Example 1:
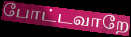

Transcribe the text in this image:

போட்டவாறே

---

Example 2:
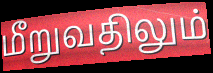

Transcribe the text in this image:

மீறுவதிலும்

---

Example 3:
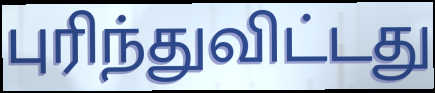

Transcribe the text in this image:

புரிந்துவிட்டது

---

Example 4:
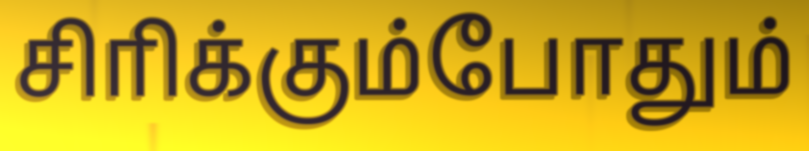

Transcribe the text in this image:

சிரிக்கும்போதும்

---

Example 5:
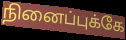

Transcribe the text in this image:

நினைப்புக்கே